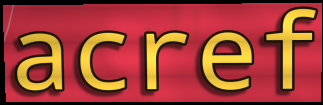
acref